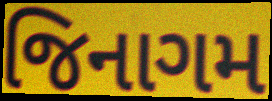
જિનાગમ